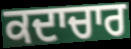
ਕਦਾਚਾਰ